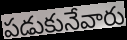
పడుకునేవారు